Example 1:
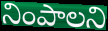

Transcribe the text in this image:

నింపాలని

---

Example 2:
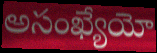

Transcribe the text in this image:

అసంఖ్యేయో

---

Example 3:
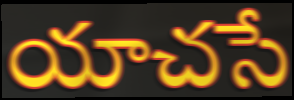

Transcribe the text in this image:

యాచసే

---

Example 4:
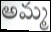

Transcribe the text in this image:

అమ్మ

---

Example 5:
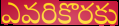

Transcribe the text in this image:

ఎవరికొరకు